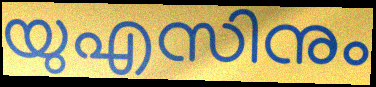
യുഎസിനും